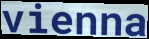
vienna